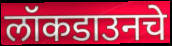
लॉकडाउनचे